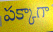
పక్కాగా